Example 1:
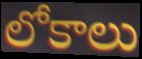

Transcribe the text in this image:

లోకాలు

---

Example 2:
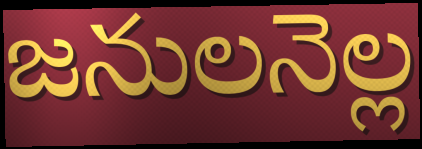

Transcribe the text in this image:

జనులనెల్ల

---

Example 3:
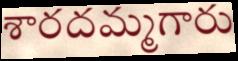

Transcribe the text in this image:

శారదమ్మగారు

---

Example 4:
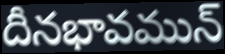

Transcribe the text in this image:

దీనభావమున్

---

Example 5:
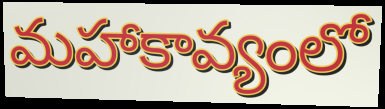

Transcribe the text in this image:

మహాకావ్యంలో